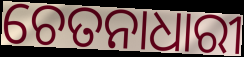
ଚେତନାଧାରୀ